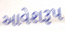
આવેશરૂપ